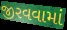
જીરવવામાં